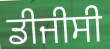
ਡੀਜੀਸੀ